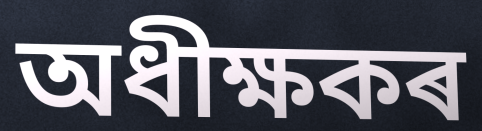
অধীক্ষকৰ